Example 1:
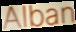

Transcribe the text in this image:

Alban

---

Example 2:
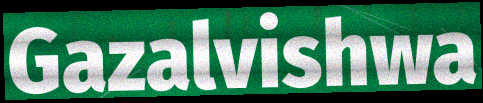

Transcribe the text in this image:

Gazalvishwa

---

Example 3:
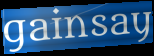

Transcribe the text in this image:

gainsay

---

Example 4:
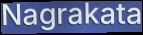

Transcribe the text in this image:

Nagrakata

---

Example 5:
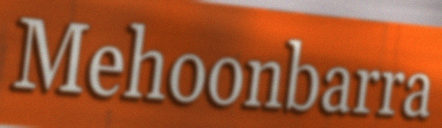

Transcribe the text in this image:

Mehoonbarra